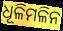
ଧୂଳିମଳିନ